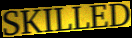
SKILLED